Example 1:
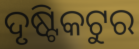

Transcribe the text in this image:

ଦୃଷ୍ଟିକଟୁର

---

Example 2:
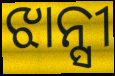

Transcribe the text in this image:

ଝାନ୍ସୀ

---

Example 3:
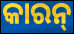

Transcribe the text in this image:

କାରନ୍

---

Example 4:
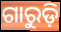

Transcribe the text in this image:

ଗାରୁଡ଼ି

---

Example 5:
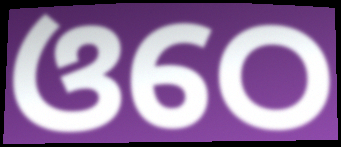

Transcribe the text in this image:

ଓଠେ